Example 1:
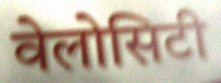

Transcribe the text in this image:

वेलोसिटी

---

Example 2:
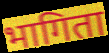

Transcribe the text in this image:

भागिता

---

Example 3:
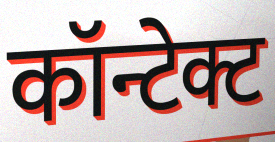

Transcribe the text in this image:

कॉन्टेक्ट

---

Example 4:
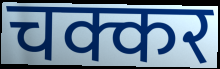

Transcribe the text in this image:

चक्कर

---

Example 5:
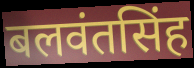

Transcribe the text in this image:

बलवंतसिंह